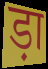
ड़ा